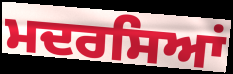
ਮਦਰਸਿਆਂ